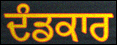
ਦੰਡਕਾਰ